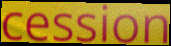
cession